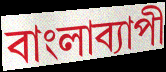
বাংলাব্যাপী